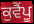
ਕੁਵੈਂਪੂ